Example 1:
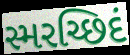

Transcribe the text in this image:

સ્મરચ્છિદં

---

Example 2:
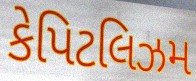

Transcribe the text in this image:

કેપિટલિઝમ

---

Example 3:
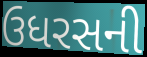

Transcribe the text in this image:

ઉધરસની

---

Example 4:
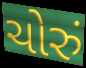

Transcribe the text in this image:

ચોરું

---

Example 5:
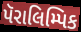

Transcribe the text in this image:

પૅરાલિમ્પિક